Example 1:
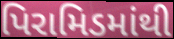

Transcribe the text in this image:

પિરામિડમાંથી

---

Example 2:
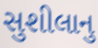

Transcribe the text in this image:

સુશીલાનુ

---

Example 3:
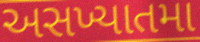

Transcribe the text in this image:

અસખ્યાતમા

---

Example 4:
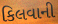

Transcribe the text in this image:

કિલવાની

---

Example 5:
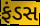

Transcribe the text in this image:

ફંડસ